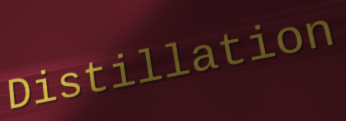
Distillation